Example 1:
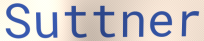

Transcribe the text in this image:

Suttner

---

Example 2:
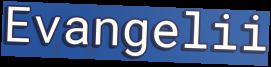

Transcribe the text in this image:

Evangelii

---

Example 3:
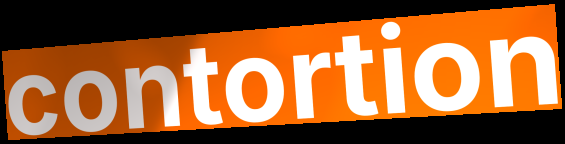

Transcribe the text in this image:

contortion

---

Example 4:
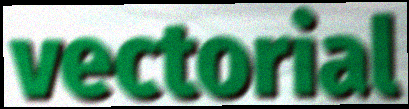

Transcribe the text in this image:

vectorial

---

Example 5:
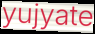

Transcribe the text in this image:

yujyate